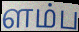
ளம்ப